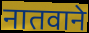
नातवाने